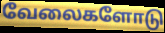
வேலைகளோடு